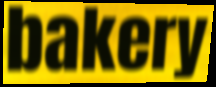
bakery